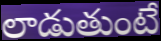
లాడుతుంటే